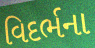
વિદર્ભના